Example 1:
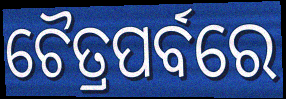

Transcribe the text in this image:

ଚୈତ୍ରପର୍ବରେ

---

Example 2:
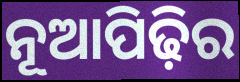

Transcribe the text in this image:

ନୂଆପିଢ଼ିର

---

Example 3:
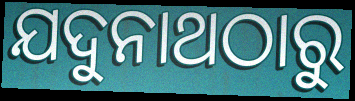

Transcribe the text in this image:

ଯଦୁନାଥଠାରୁ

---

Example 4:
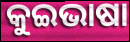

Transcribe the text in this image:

କୁଇଭାଷା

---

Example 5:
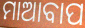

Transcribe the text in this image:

ମାଆବାପ